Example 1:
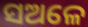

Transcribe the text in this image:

ସଅଳେ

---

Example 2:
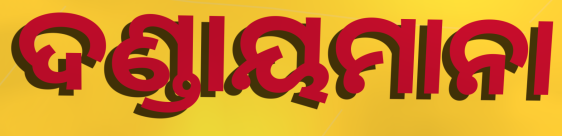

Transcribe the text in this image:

ଦଣ୍ଡାୟମାନା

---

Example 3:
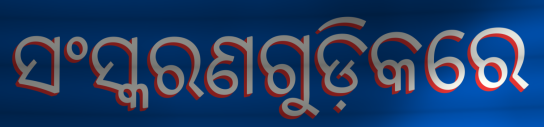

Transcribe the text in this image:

ସଂସ୍କରଣଗୁଡ଼ିକରେ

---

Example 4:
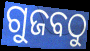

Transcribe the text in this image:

ଗୁଜବଠୁ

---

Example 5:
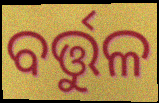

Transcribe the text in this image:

ବର୍ତ୍ତୁଳ